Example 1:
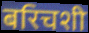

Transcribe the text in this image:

बरिचशी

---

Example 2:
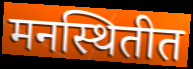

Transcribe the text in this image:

मनस्थितीत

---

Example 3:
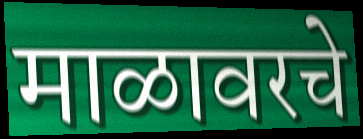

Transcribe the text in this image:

माळावरचे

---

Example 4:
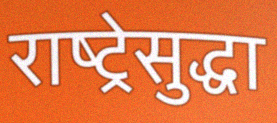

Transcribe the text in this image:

राष्ट्रेसुद्धा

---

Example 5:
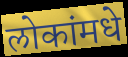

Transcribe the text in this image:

लोकांमधे